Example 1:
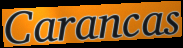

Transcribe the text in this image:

Carancas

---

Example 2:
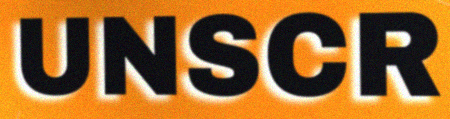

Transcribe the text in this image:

UNSCR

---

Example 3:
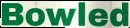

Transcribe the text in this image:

Bowled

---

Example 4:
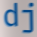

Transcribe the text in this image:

dj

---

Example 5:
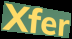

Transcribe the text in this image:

Xfer